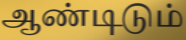
ஆண்டிடும்